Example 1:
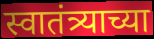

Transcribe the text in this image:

स्वातंत्र्याच्या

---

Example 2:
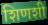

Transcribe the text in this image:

शिणशी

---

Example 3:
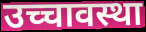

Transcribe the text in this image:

उच्चावस्था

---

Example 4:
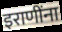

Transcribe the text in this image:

इराणींना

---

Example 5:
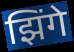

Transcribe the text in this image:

झिंगे